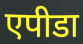
एपीडा